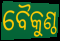
ବୈକୁଣ୍ଠ